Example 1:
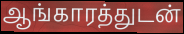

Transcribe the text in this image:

ஆங்காரத்துடன்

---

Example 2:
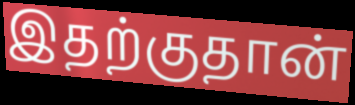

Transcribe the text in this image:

இதற்குதான்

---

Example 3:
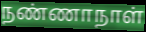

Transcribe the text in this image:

நண்ணாநாள்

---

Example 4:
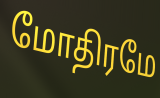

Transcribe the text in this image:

மோதிரமே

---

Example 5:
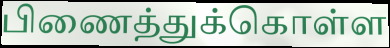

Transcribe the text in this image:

பிணைத்துக்கொள்ள